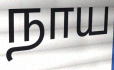
நாய